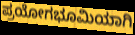
ಪ್ರಯೋಗಭೂಮಿಯಾಗಿ